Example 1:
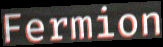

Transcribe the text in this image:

Fermion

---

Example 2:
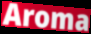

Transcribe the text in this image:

Aroma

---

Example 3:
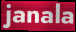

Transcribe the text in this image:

janala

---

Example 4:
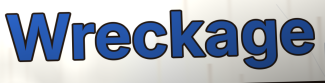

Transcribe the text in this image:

Wreckage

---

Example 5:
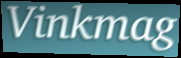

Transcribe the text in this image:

Vinkmag